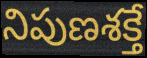
నిపుణశక్తే